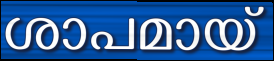
ശാപമായ്